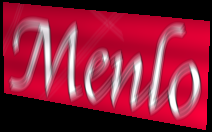
Menlo